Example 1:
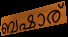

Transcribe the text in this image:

ബഷാര്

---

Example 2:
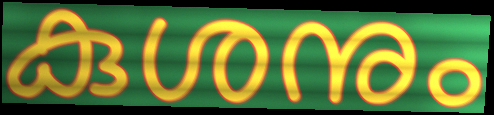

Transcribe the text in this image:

കുശനും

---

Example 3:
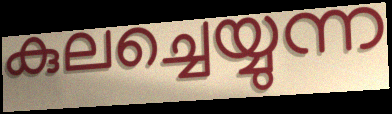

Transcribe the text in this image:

കുലച്ചെയ്യുന്ന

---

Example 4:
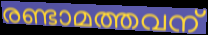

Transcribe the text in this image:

രണ്ടാമത്തവന്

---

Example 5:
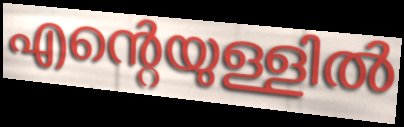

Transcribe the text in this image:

എന്റെയുള്ളിൽ